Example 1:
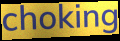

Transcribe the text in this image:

choking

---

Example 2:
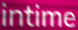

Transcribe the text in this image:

intime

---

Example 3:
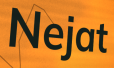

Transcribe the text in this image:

Nejat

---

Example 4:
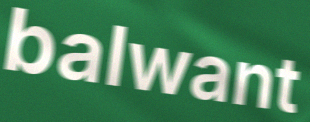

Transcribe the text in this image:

balwant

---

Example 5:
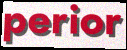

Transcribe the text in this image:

perior